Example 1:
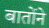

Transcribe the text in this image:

बातोंने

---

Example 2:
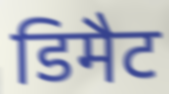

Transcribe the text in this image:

डिमैट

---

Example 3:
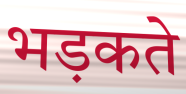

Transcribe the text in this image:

भड़कते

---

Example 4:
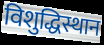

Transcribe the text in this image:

विशुद्धिस्थान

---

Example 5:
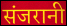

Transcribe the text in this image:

संजरानी